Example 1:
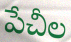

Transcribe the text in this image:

పేచీల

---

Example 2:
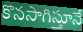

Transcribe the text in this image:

కొనసాగిస్తూనే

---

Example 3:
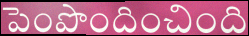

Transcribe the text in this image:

పెంపొందించింది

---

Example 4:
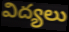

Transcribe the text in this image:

విద్యలు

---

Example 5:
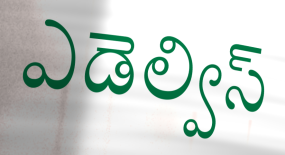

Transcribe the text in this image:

ఎడెల్విస్